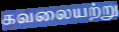
கவலையற்று